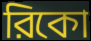
রিকো